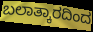
ಬಲಾತ್ಕಾರದಿಂದ